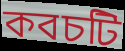
কবচটি